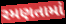
રમણતામાં